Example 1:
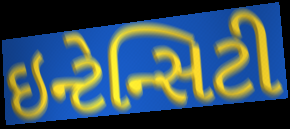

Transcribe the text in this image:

ઇન્ટેન્સિટી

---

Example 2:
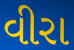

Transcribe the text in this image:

વીરા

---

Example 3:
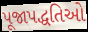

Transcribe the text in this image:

પૂજાપદ્ધતિઓ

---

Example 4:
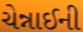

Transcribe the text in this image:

ચેન્નાઈની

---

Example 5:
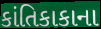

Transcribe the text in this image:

કાંતિકાકાના